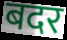
बदर